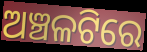
ଅଞ୍ଚଳଟିରେ